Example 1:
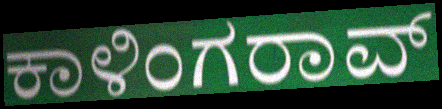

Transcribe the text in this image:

ಕಾಳಿಂಗರಾವ್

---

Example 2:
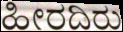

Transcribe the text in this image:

ಹೀರದಿರು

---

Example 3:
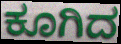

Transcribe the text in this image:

ಕೂಗಿದ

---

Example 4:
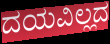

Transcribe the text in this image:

ದಯವಿಲ್ಲದ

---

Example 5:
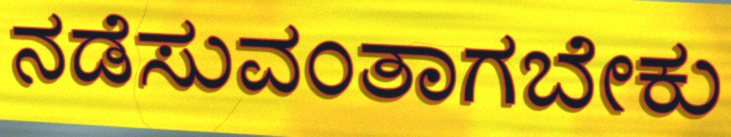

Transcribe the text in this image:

ನಡೆಸುವಂತಾಗಬೇಕು